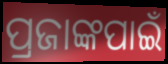
ପ୍ରଜାଙ୍କପାଇଁ